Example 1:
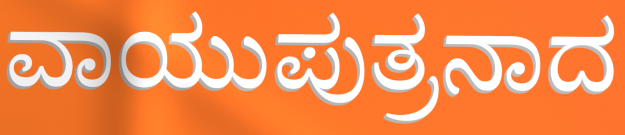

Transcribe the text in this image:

ವಾಯುಪುತ್ರನಾದ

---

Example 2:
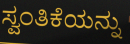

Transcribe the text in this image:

ಸ್ವಂತಿಕೆಯನ್ನು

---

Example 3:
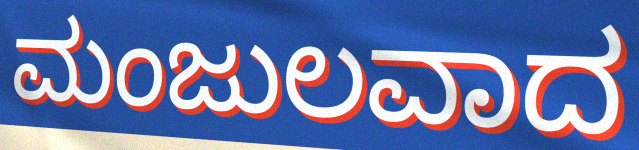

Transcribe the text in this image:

ಮಂಜುಲವಾದ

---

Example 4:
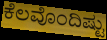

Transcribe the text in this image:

ಕೆಲವೊಂದಿಷ್ಟು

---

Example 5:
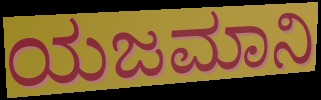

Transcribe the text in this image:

ಯಜಮಾನಿ